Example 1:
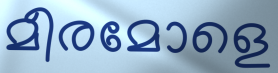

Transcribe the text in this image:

മീരമോളെ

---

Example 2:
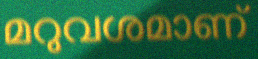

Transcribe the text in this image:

മറുവശമാണ്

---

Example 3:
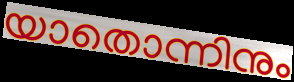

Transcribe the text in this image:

യാതൊന്നിനും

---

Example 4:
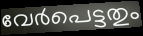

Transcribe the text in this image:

വേർപെട്ടതും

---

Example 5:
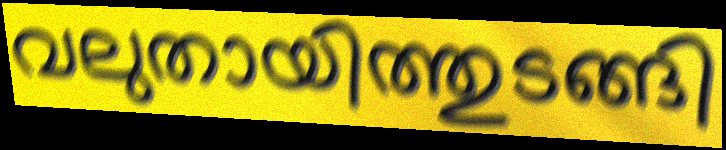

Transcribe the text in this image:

വലുതായിത്തുടങ്ങി